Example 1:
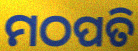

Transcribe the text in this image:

ମଠପତି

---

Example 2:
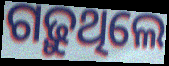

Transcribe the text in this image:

ଗଢ଼ୁଥିଲେ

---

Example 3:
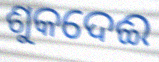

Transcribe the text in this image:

ଶୁକଦେଈ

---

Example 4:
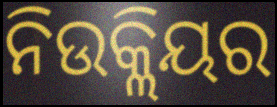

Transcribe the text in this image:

ନିଉକ୍ଲିୟର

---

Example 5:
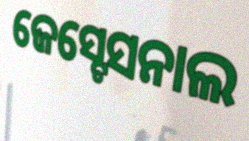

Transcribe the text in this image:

ଜେସ୍ଟେସନାଲ